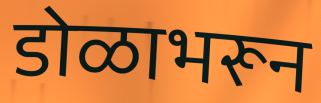
डोळाभरून